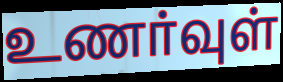
உணர்வுள்